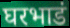
घरभाडं